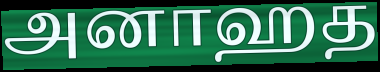
அனாஹத